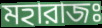
মহারাজঃ